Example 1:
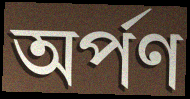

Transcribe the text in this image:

অৰ্পণ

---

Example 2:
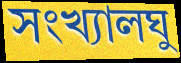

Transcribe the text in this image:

সংখ্যালঘু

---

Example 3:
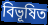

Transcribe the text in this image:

বিভূষিত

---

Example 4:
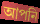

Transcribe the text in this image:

আপনি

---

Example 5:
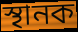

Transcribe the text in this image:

স্থানক